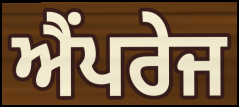
ਐਂਪਰੇਜ